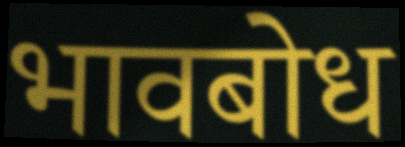
भावबोध